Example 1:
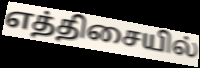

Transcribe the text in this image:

எத்திசையில்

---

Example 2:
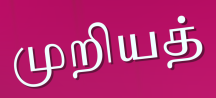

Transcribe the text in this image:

முறியத்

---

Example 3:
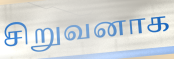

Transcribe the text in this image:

சிறுவனாக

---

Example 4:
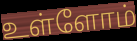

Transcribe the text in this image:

உள்ளோம்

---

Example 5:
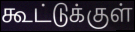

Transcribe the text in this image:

கூட்டுக்குள்